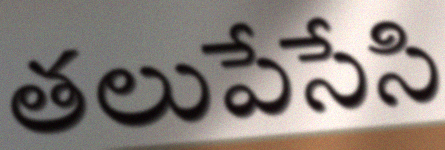
తలుపేసేసి